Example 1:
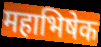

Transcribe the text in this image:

महाभिषेक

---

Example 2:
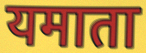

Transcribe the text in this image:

यमाता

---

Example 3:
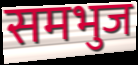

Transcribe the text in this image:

समभुज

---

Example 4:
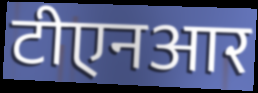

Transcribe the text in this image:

टीएनआर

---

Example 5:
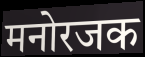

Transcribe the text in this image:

मनोरजक